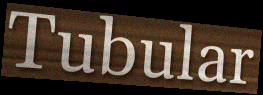
Tubular